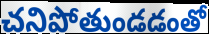
చనిపోతుండడంతో